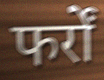
फर्रों